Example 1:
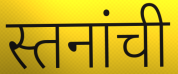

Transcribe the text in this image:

स्तनांची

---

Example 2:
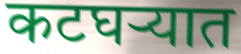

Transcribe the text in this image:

कटघऱ्यात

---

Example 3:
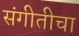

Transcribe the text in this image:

संगीतीचा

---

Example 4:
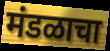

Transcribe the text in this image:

मंडळाचा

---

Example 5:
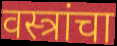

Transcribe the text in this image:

वस्त्रांचा